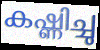
കഷ്ണിച്ചു